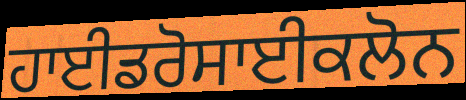
ਹਾਈਡਰੋਸਾਈਕਲੋਨ